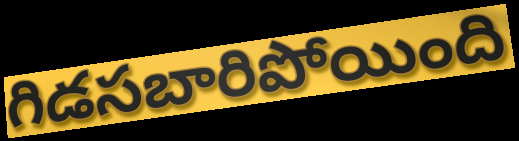
గిడసబారిపోయింది